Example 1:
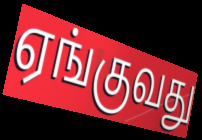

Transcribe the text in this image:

ஏங்குவது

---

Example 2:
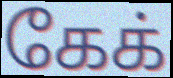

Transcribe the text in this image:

கேக்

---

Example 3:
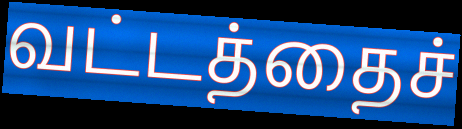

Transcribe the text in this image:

வட்டத்தைச்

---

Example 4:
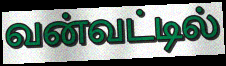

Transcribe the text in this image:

வன்வட்டில்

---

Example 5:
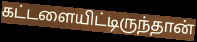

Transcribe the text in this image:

கட்டளையிட்டிருந்தான்